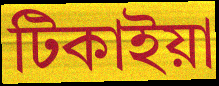
টিকাইয়া